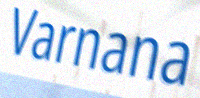
Varnana